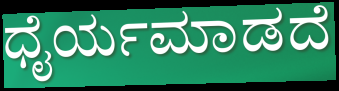
ಧೈರ್ಯಮಾಡದೆ